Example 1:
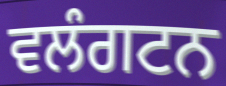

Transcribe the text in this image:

ਵਲੰਗਟਨ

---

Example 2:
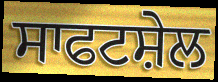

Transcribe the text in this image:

ਸਾਫਟਸ਼ੇਲ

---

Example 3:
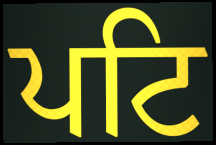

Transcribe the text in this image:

ਪਟਿ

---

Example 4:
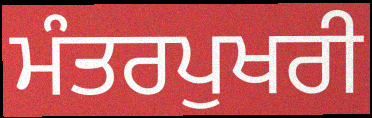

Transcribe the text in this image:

ਮੰਤਰਪੁਖਰੀ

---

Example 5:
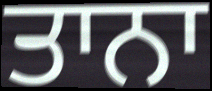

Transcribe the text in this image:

ਤਾਨਾ